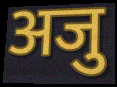
अजु